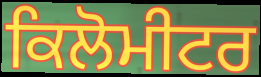
ਕਿਲੋਮੀਟਰ